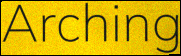
Arching